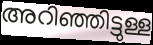
അറിഞ്ഞിട്ടുള്ള